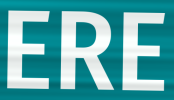
ERE